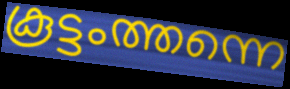
കൂട്ടംത്തന്നെ